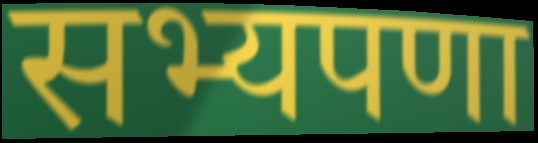
सभ्यपणा